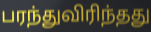
பரந்துவிரிந்தது